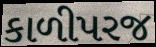
કાળીપરજ